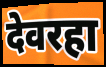
देवरहा